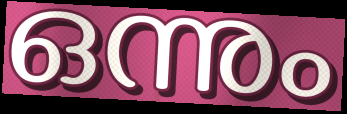
ഒന്നും